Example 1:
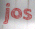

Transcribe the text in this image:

jos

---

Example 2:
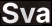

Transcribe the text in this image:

Sva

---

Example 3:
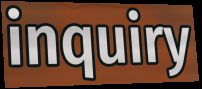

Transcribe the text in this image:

inquiry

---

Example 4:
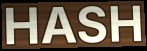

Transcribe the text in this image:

HASH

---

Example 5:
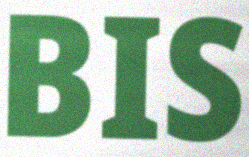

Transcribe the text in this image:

BIS